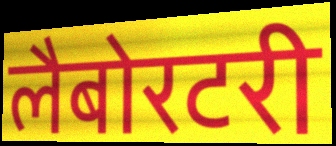
लैबोरटरी